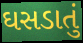
ઘસડાતું